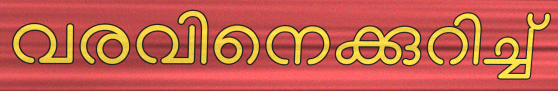
വരവിനെക്കുറിച്ച്